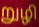
றுழி